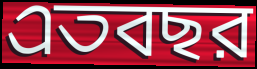
এতবছর